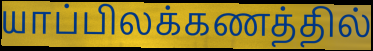
யாப்பிலக்கணத்தில்